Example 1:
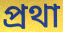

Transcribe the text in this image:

প্ৰথা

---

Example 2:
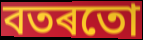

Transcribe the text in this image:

বতৰতো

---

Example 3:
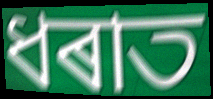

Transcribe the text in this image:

ধৰাত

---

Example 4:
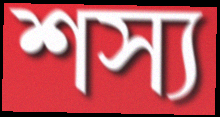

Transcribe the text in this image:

শস্য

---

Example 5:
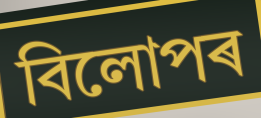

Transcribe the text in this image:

বিলোপৰ